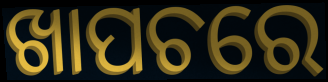
ଖାପଚରେ